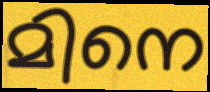
മിനെ